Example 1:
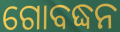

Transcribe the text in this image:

ଗୋବଦ୍ଧନ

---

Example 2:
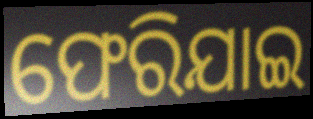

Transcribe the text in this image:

ଫେରିଯାଇ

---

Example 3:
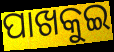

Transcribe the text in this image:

ପାଖକୁଇ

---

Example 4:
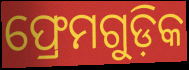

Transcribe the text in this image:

ଫ୍ରେମଗୁଡ଼ିକ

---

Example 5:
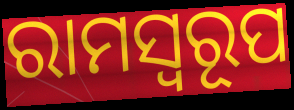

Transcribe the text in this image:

ରାମସ୍ୱରୂପ